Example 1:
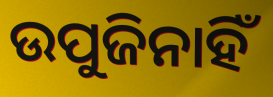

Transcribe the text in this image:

ଉପୁଜିନାହିଁ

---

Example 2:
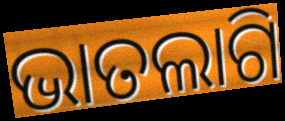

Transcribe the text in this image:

ଭାତଲାଗି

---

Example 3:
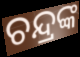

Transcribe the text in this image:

ଚନ୍ଦ୍ରଙ୍କ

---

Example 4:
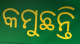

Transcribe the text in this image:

କମୁଛନ୍ତି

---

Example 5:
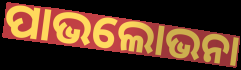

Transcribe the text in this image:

ପାଭଲୋଭନା